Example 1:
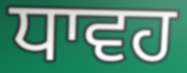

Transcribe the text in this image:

ਧਾਵਹ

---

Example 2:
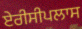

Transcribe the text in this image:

ਏਰੀਸੀਪਲਾਸ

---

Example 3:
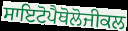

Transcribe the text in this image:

ਸਾਇਟੋਪੈਥੋਲੋਜੀਕਲ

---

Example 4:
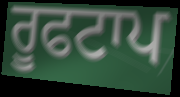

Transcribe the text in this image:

ਰੂਫਟਾਪ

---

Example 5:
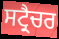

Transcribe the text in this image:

ਸਟ੍ਰੈਚਰ